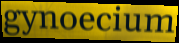
gynoecium